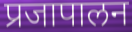
प्रजापालन